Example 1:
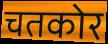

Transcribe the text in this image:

चतकोर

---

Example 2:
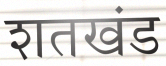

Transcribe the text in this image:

शतखंड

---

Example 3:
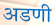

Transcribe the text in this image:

अडणी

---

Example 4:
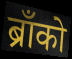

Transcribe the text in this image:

ब्राँको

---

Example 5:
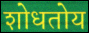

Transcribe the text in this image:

शोधतोय